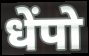
धेंपो